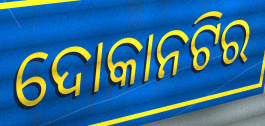
ଦୋକାନଟିର